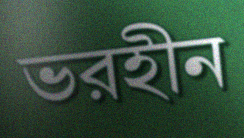
ভরহীন